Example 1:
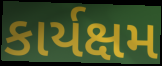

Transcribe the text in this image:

કાર્યક્ષમ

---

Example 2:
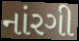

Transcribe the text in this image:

નાંરગી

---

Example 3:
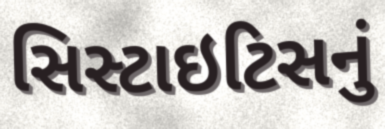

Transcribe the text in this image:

સિસ્ટાઇટિસનું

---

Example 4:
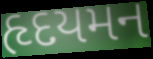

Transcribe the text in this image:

હૃદયમન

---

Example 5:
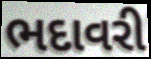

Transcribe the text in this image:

ભદાવરી